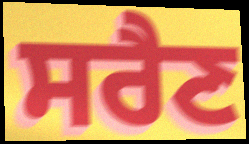
ਸਰੈਣ